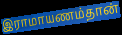
இராமாயணம்தான்